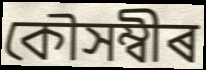
কৌসম্বীৰ